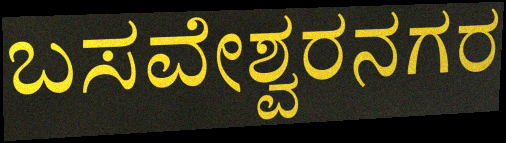
ಬಸವೇಶ್ವರನಗರ